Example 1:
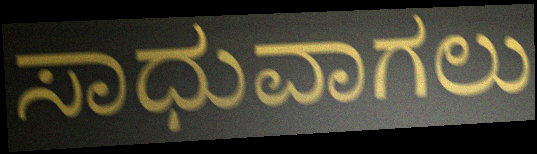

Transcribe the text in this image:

ಸಾಧುವಾಗಲು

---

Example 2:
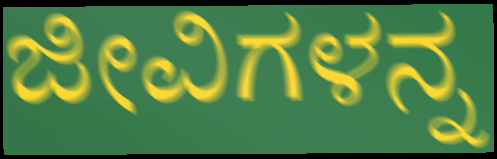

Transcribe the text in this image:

ಜೀವಿಗಳನ್ನ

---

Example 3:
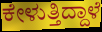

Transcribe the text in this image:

ಕೇಳುತ್ತಿದ್ದಾಳೆ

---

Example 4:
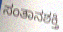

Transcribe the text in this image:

ಸಂತಾನಶಕ್ತಿ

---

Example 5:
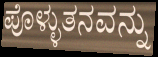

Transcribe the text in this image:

ಪೊಳ್ಳುತನವನ್ನು